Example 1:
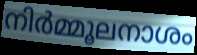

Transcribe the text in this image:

നിർമ്മൂലനാശം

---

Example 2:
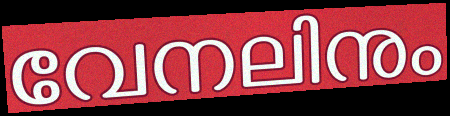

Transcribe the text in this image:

വേനലിനും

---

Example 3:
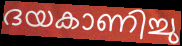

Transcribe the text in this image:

ദയകാണിച്ചു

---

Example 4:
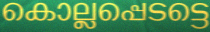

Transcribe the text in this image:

കൊല്ലപ്പെടട്ടെ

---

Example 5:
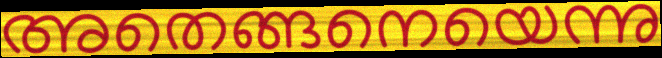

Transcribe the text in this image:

അതെങ്ങനെയെന്നു